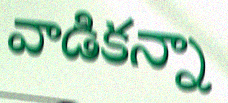
వాడికన్నా